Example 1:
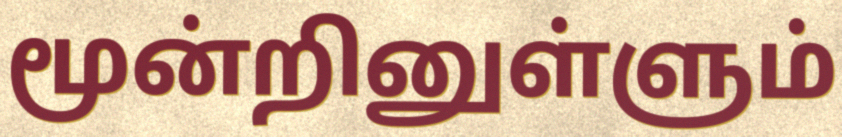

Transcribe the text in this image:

மூன்றினுள்ளும்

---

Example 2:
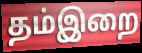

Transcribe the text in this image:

தம்இறை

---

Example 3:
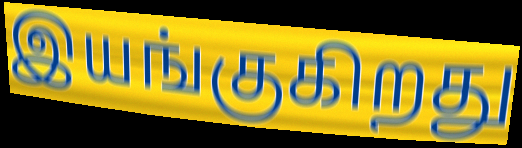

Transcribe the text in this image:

இயங்குகிறது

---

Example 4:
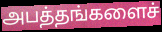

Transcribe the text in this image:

அபத்தங்களைச்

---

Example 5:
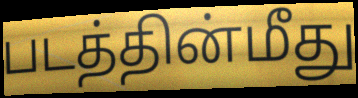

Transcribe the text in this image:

படத்தின்மீது